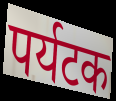
पर्यटक